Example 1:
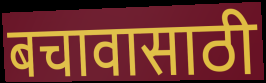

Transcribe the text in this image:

बचावासाठी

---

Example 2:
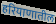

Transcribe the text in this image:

हरियाणातील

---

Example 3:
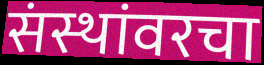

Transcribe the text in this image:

संस्थांवरचा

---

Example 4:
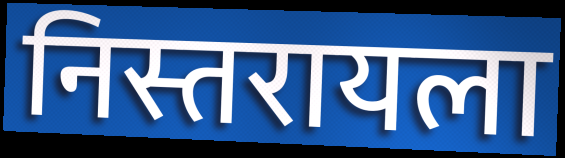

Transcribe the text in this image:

निस्तरायला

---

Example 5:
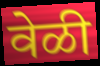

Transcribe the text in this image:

वेळी